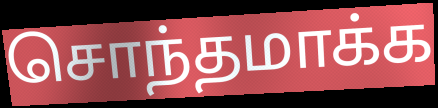
சொந்தமாக்க